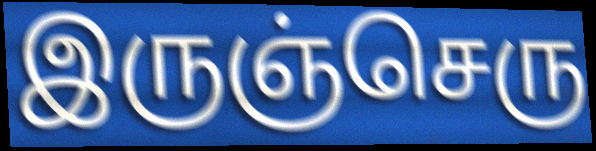
இருஞ்செரு